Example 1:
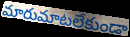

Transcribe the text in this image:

మారుమాటలేకుండా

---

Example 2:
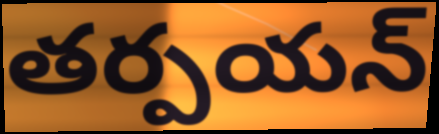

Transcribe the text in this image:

తర్పయన్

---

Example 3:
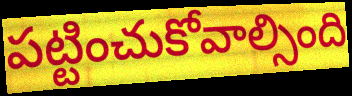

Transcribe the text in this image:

పట్టించుకోవాల్సింది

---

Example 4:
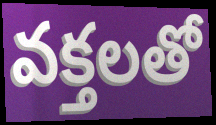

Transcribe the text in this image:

వక్తలతో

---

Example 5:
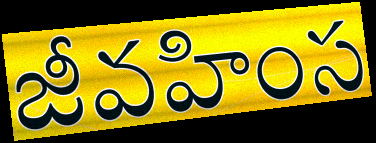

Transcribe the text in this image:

జీవహింస